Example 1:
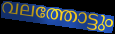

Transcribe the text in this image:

വലത്തോട്ടും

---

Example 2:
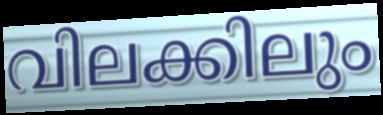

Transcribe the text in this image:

വിലക്കിലും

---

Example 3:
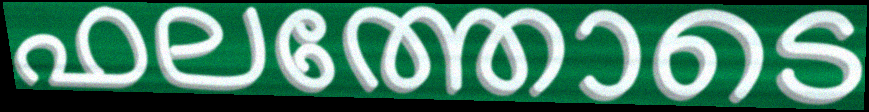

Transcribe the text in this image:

ഫലത്തോടെ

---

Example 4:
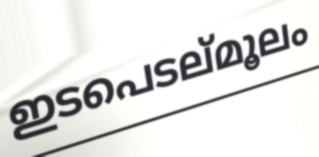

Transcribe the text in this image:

ഇടപെടല്മൂലം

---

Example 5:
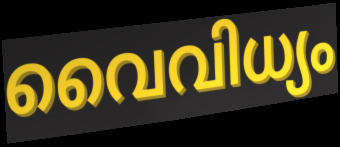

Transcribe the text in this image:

വൈവിധ്യം